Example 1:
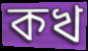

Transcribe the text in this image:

কখ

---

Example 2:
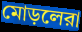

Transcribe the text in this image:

মোড়লেরা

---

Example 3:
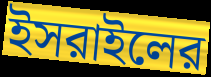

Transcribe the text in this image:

ইসরাইলের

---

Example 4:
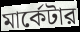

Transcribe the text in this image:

মার্কেটার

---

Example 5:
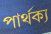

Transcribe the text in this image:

পার্থক্য